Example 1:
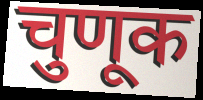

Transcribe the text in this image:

चुणूक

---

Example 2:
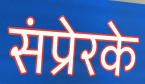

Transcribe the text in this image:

संप्रेरके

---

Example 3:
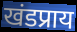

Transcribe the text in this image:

खंडप्राय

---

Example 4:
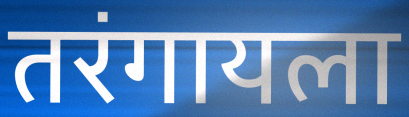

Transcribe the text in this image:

तरंगायला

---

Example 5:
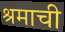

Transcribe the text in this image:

श्रमाची